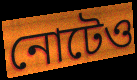
নোটেও